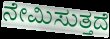
ನೇಮಿಸುತ್ತದೆ